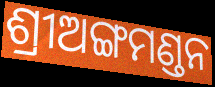
ଶ୍ରୀଅଙ୍ଗମଣ୍ଡନ